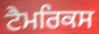
ਟੈਮਰਿਕਸ